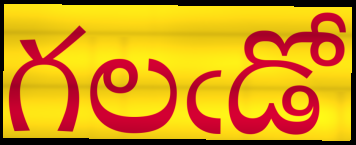
గలఁడో